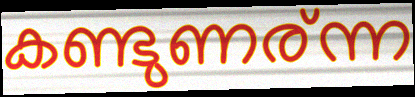
കണ്ടുണര്ന്ന